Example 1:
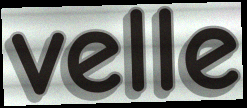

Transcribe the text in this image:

velle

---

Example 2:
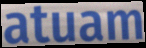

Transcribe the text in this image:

atuam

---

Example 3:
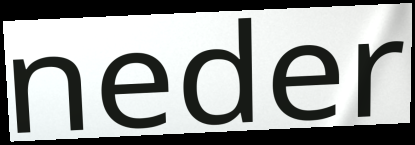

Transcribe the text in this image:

neder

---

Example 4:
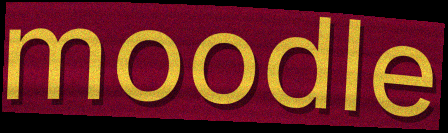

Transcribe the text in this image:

moodle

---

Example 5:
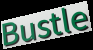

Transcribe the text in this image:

Bustle